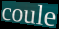
coule